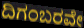
ದಿಗಂಬರವೇ